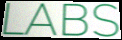
LABS